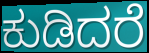
ಕುಡಿದರೆ